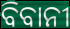
ବିବାନୀ